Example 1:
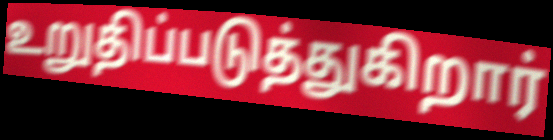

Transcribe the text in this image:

உறுதிப்படுத்துகிறார்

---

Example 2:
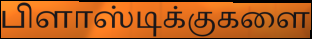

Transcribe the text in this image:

பிளாஸ்டிக்குகளை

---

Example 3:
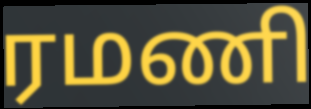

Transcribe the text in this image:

ரமணி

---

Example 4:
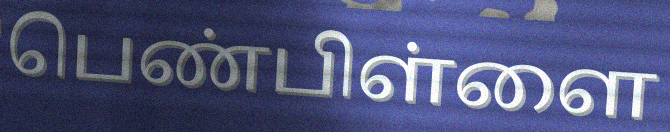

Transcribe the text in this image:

பெண்பிள்ளை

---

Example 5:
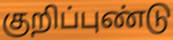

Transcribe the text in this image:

குறிப்புண்டு